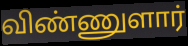
விண்ணுளார்